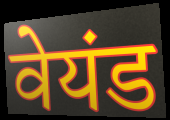
वेयंड